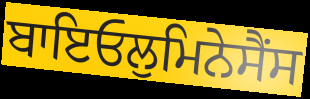
ਬਾਇਓਲੁਮਿਨੇਸੈਂਸ